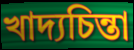
খাদ্যচিন্তা